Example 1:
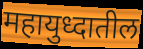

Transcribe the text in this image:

महायुध्दातील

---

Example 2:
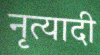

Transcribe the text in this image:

नृत्यादी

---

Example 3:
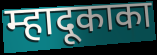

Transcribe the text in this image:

म्हादूकाका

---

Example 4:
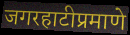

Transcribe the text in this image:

जगरहाटीप्रमाणे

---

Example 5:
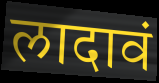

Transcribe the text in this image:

लादावं